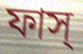
ফাস্